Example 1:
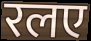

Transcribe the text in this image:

रलए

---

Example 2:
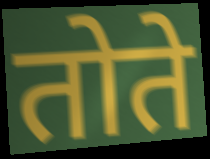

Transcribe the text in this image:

तोते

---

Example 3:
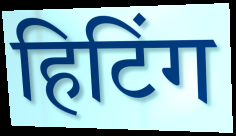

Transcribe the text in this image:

हिटिंग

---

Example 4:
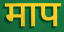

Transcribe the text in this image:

माप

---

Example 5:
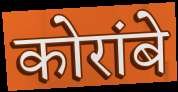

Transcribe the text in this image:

कोरांबे